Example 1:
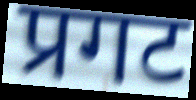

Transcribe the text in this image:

प्रगट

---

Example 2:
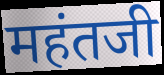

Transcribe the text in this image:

महंतजी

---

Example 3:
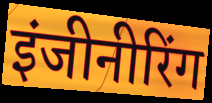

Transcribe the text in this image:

इंजीनीरिंग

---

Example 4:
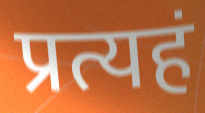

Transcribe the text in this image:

प्रत्यहं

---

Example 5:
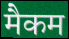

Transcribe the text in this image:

मैकम